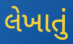
લેખાતું